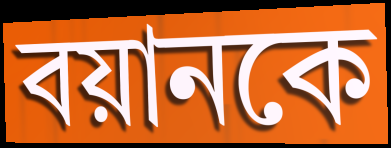
বয়ানকে